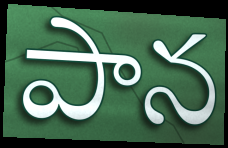
పాన